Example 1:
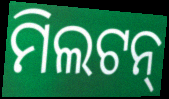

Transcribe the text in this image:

ମିଲଟନ୍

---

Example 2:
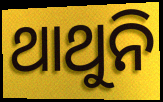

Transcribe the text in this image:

ଥାଥୁନି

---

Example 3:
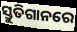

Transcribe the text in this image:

ସ୍ତୁତିଗାନରେ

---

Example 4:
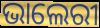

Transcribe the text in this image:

ଭାଲେରୀ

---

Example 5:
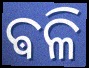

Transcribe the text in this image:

ଵଳି